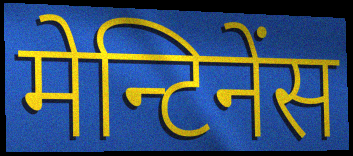
मेन्टिनेंस